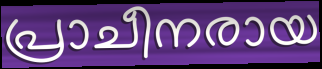
പ്രാചീനരായ